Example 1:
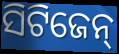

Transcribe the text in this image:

ସିଟିଜେନ୍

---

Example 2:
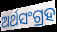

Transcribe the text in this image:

ଅର୍ଥସଂଗ୍ରହ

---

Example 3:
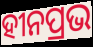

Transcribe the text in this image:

ହୀନପ୍ରଭ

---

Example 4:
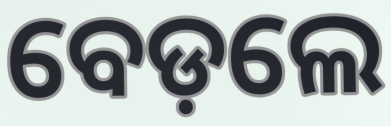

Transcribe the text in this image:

ବେଡ଼ଲେ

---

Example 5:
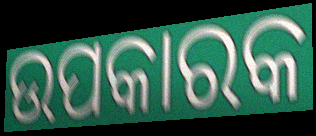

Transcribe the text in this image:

ଉପକାରକ